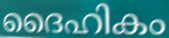
ദൈഹികം